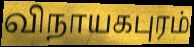
விநாயகபுரம்